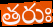
తరుః